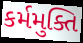
કર્મમુક્તિ